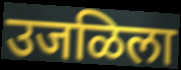
उजळिला